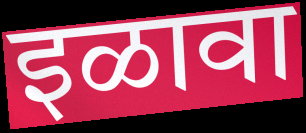
इळावा